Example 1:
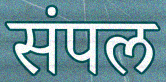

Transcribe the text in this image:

संपल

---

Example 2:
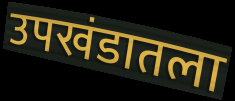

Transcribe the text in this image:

उपखंडातला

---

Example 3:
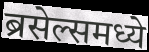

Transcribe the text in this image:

ब्रसेल्समध्ये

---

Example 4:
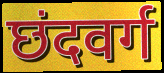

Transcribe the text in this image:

छंदवर्ग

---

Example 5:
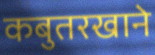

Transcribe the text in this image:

कबुतरखाने